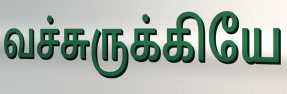
வச்சுருக்கியே